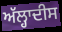
ਅੱਲ੍ਹਾਦੀਸ